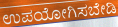
ಉಪಯೋಗಿಸಬೇಡಿ